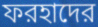
ফরহাদের